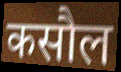
कसौल